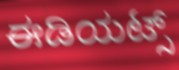
ಈಡಿಯಟ್ಸ್